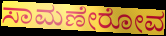
ಸಾಮಣೇರೋವ